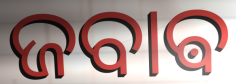
ଜବାଵ